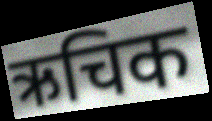
ऋचिक